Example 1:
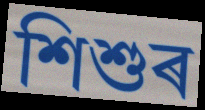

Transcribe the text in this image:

শিশুৰ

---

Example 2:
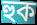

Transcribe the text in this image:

হুক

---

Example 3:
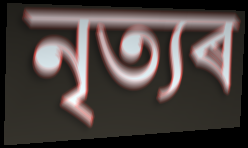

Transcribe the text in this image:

নৃত্যৰ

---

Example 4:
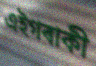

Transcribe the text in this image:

এইগৰাকী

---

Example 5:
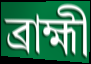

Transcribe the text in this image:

ব্ৰাহ্মী